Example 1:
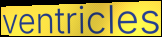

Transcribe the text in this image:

ventricles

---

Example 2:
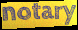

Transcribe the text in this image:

notary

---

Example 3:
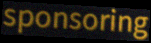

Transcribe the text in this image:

sponsoring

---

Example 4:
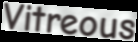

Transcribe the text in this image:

Vitreous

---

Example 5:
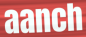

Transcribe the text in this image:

aanch